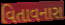
વિતાવનારા